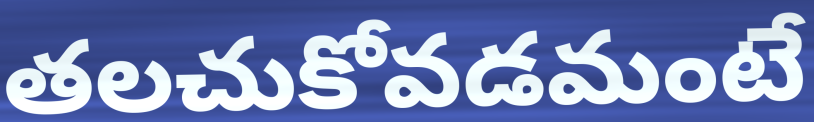
తలచుకోవడమంటే